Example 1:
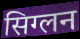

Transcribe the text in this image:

सिग्‍लन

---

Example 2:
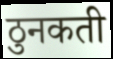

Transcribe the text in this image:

ठुनकती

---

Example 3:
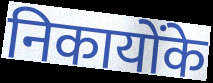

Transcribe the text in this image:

निकायोंके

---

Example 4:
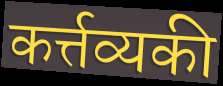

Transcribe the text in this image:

कर्त्तव्यकी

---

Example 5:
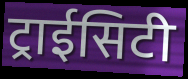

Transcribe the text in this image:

ट्राईसिटी